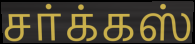
சர்க்கஸ்